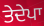
ਤੇਦੇਪਾ